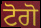
ਟੋਗੋ